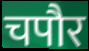
चपौर